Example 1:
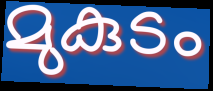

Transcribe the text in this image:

മുകുടം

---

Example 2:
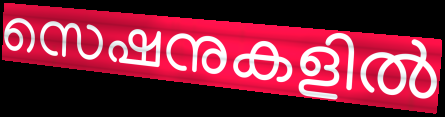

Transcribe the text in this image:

സെഷനുകളിൽ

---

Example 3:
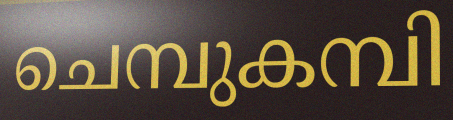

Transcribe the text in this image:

ചെമ്പുകമ്പി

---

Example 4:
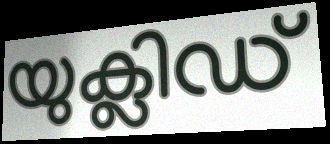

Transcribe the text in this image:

യുക്ലിഡ്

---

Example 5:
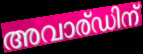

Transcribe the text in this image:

അവാര്ഡിന്